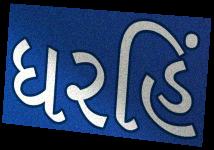
ધરહિં